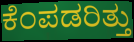
ಕೆಂಪಡರಿತ್ತು